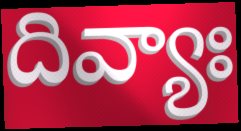
దివ్యాః